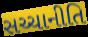
સચ્ચાનીતિ